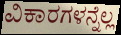
ವಿಕಾರಗಳನ್ನೆಲ್ಲ